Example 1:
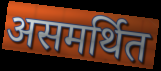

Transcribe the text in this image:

असमर्थित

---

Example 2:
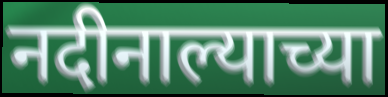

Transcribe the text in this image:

नदीनाल्याच्या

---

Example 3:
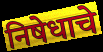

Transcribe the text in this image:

निषेधाचे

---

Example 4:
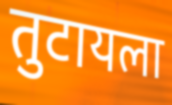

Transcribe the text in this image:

तुटायला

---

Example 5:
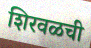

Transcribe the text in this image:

शिरवळची